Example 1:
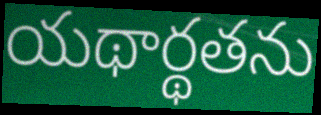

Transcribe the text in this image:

యథార్థతను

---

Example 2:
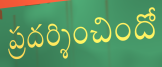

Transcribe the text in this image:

ప్రదర్శించిందో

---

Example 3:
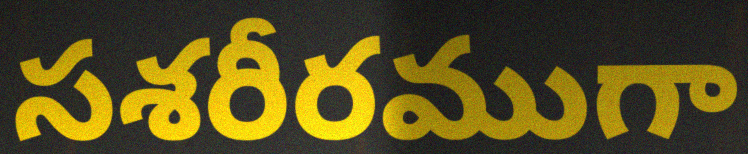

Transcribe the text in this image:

సశరీరముగా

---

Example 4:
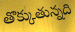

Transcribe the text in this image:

తొక్కుతున్నది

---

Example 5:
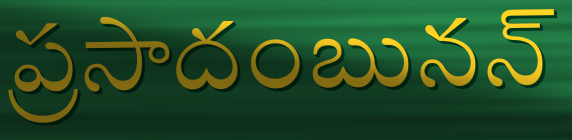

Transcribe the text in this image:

ప్రసాదంబునన్